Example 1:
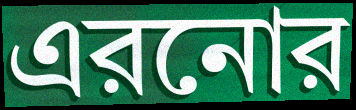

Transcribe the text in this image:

এরনোর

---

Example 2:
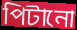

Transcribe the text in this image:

পিটানো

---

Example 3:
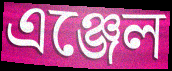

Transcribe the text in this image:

এঞ্জেল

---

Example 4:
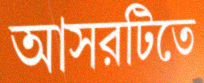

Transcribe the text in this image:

আসরটিতে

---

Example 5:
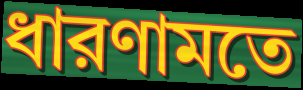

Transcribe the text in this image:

ধারণামতে